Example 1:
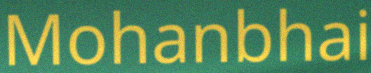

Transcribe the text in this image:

Mohanbhai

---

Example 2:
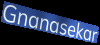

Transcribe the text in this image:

Gnanasekar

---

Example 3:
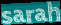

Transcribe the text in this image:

sarah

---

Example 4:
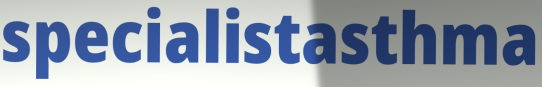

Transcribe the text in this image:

specialistasthma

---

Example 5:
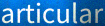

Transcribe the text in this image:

articular